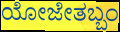
ಯೋಜೇತಬ್ಬಂ